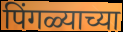
पिंगळ्याच्या